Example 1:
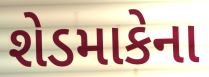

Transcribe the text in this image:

શેડમાકેના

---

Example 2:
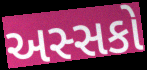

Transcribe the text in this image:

અસ્સકો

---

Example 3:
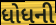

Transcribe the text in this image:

ધોધની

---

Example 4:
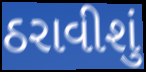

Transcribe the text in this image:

ઠરાવીશું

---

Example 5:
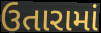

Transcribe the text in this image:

ઉતારામાં